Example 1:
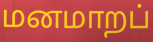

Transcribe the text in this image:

மனமாறப்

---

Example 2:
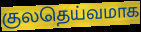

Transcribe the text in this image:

குலதெய்வமாக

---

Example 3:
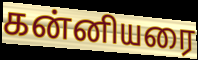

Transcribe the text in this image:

கன்னியரை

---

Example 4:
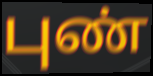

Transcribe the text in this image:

புண்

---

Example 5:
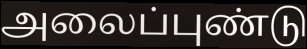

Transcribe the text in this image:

அலைப்புண்டு